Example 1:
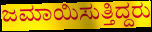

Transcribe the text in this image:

ಜಮಾಯಿಸುತ್ತಿದ್ದರು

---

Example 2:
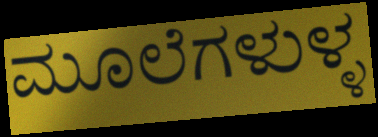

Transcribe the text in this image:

ಮೂಲೆಗಳುಳ್ಳ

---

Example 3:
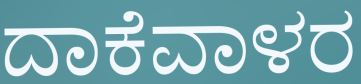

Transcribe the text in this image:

ದಾಕೆವಾಳರ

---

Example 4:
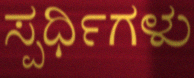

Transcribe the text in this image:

ಸ್ಪರ್ಧಿಗಳು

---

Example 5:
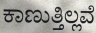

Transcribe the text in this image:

ಕಾಣುತ್ತಿಲ್ಲವೆ